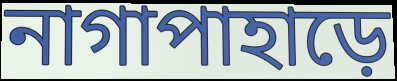
নাগাপাহাড়ে